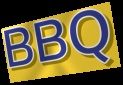
BBQ